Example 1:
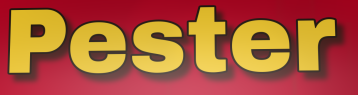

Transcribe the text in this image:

Pester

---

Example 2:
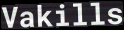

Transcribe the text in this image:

Vakills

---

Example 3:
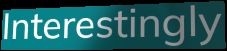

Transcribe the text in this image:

Interestingly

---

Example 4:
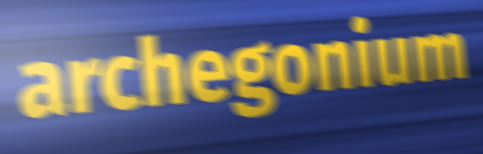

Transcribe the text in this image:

archegonium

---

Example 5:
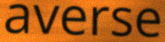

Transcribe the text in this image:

averse